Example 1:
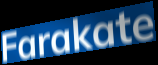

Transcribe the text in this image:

Farakate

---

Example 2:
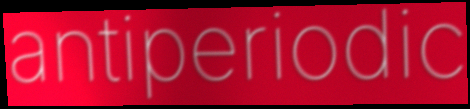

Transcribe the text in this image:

antiperiodic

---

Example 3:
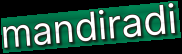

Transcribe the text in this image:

mandiradi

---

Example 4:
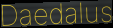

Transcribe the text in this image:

Daedalus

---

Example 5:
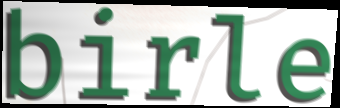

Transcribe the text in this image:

birle